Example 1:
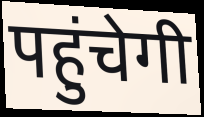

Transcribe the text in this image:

पहुंचेगी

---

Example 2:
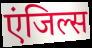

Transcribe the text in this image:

एंजिल्स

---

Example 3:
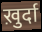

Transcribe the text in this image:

ख़ुर्दा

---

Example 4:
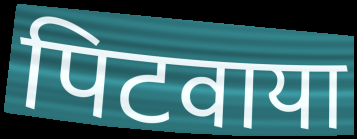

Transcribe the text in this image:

पिटवाया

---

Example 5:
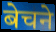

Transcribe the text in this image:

बेचने